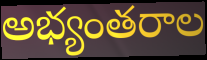
అభ్యంతరాల